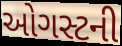
ઓગસ્ટની